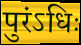
पुरंऽधिः